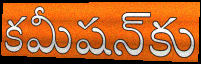
కమీషన్‌కు